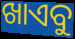
ଖାଏବୁ